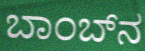
ಬಾಂಬ್‍ನ